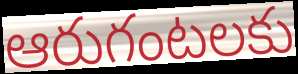
ఆరుగంటలకు